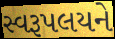
સ્વરૂપલયને